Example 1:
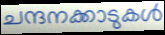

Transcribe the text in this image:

ചന്ദനക്കാടുകൾ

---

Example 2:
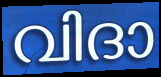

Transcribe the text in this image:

വിദാ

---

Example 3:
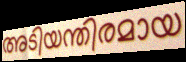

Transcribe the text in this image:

അടിയന്തിരമായ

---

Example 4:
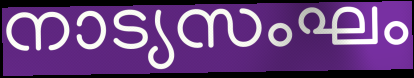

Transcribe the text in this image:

നാട്യസംഘം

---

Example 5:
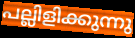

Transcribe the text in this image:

പല്ലിളിക്കുന്നു